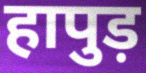
हापुड़